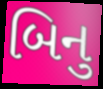
બિનુ